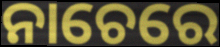
ନାଚେରେ